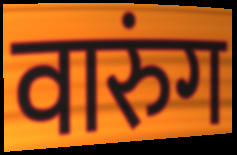
वारुंग